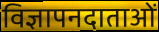
विज्ञापनदाताओं